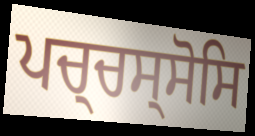
ਪਚ੍ਚਸ੍ਸੋਸਿ